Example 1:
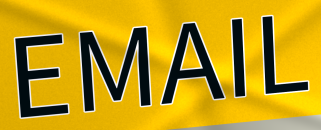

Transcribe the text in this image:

EMAIL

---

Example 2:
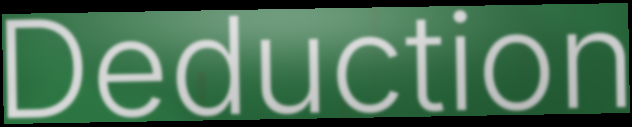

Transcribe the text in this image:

Deduction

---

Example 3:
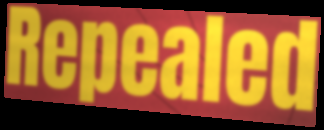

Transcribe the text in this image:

Repealed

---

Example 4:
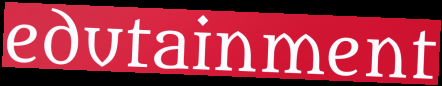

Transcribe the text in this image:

edutainment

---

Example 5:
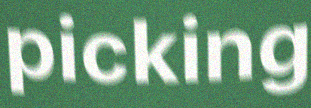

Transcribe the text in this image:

picking